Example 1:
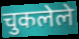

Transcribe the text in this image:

चुकलेले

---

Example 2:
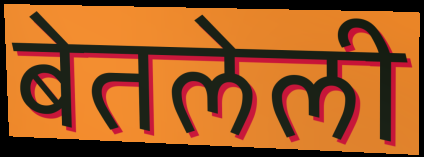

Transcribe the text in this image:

बेतलेली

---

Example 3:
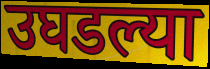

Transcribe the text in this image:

उघडल्या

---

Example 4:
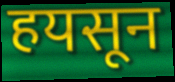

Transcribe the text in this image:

हयसून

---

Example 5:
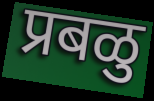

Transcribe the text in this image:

प्रबळु